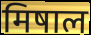
मिषाल